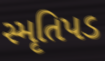
સ્મૃતિપડ